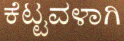
ಕೆಟ್ಟವಳಾಗಿ